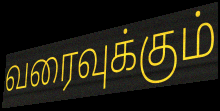
வரைவுக்கும்